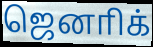
ஜெனரிக்